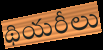
థియరీలు